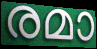
രമാ